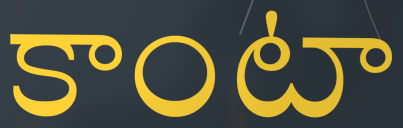
కాంటా